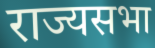
राज्यसभा